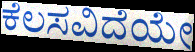
ಕೆಲಸವಿದೆಯೇ